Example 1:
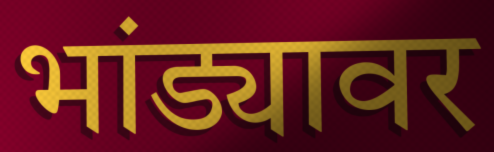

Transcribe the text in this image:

भांड्यावर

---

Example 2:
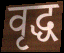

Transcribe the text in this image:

वृद्ध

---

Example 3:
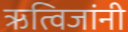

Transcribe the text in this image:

ऋत्विजांनी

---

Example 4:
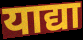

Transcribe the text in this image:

याद्या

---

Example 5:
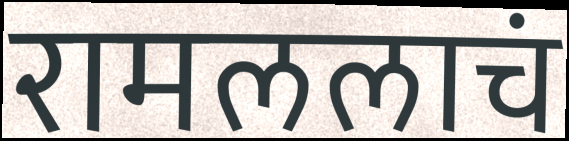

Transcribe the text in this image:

रामललाचं